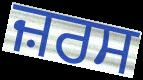
ਜ਼ਰਸ